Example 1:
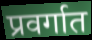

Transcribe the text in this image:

प्रवर्गात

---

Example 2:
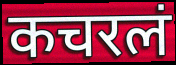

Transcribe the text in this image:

कचरलं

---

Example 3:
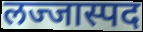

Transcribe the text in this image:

लज्जास्पद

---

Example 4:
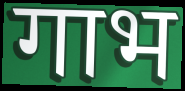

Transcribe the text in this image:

गाभ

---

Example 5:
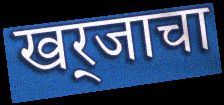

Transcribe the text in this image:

खर्जाचा